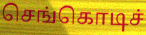
செங்கொடிச்